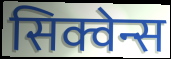
सिक्वेन्स